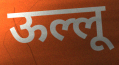
ऊल्लू